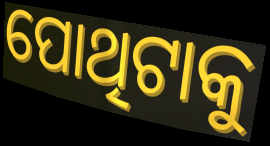
ପୋଥିଟାକୁ